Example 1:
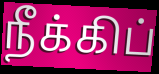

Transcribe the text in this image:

நீக்கிப்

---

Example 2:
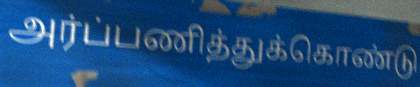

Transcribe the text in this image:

அர்ப்பணித்துக்கொண்டு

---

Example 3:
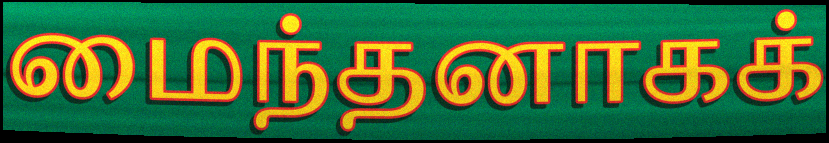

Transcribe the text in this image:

மைந்தனாகக்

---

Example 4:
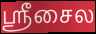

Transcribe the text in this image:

ஸ்ரீசைல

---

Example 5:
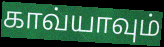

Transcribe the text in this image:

காவ்யாவும்